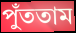
পুঁততাম